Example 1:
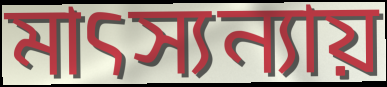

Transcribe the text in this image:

মাৎস্যন্যায়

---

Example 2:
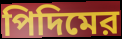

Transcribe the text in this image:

পিদিমের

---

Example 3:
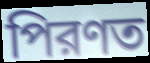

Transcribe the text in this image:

পিরণত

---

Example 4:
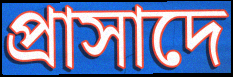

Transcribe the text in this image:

প্রাসাদে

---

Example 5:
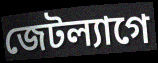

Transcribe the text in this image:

জেটল্যাগে